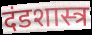
दंडशास्त्र